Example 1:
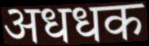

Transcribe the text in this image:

अधधक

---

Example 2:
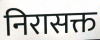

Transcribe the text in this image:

निरासक्त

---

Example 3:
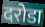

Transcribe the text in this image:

दरोडा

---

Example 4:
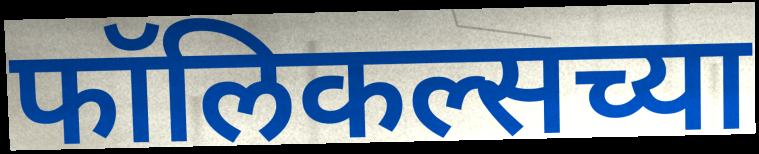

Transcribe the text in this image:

फॉलिकल्सच्या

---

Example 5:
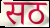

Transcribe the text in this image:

सठ